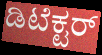
ಡಿಟೆಕ್ಟರ್